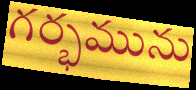
గర్భమును